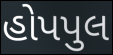
હોપપુલ